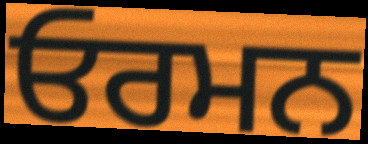
ਓਰਮਨ